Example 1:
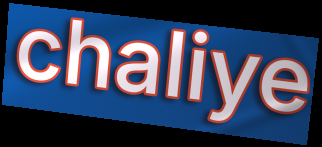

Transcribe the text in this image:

chaliye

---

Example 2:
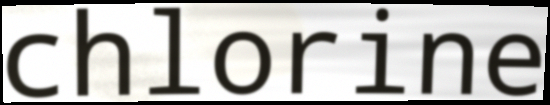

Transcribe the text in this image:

chlorine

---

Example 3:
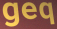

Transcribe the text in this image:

geq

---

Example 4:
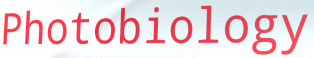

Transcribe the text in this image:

Photobiology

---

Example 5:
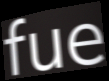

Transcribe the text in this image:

fue